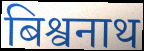
बिश्वनाथ